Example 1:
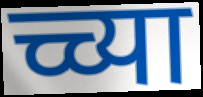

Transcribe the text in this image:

च्च्या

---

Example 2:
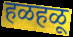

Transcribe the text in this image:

हळहळू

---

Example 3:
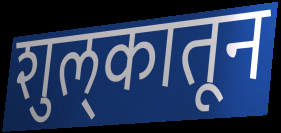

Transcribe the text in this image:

शुल्कातून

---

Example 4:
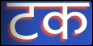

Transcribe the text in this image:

टक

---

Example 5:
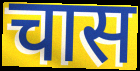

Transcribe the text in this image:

चास